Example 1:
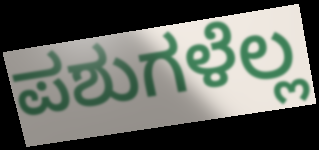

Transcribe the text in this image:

ಪಶುಗಳೆಲ್ಲ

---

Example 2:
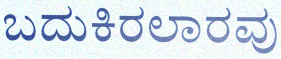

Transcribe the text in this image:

ಬದುಕಿರಲಾರವು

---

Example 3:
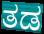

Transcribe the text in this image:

ತಡ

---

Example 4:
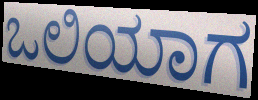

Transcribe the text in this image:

ಒಲಿಯಾಗ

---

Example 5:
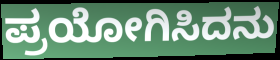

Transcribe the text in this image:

ಪ್ರಯೋಗಿಸಿದನು